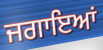
ਜਗਾਇਆਂ